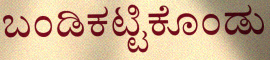
ಬಂಡಿಕಟ್ಟಿಕೊಂಡು